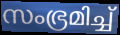
സംഭ്രമിച്ച്